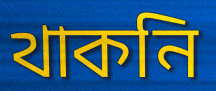
থাকনি